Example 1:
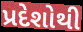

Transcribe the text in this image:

પ્રદેશોથી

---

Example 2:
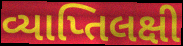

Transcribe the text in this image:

વ્યાપ્તિલક્ષી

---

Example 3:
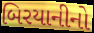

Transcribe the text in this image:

બિરયાનીનો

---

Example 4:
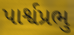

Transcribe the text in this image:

પાર્શ્વપ્રભુ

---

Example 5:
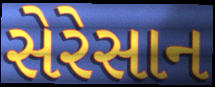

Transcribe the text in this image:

સેરેસાન